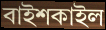
বাইশকাইল